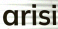
arisi